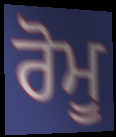
ਰੋਮੂ